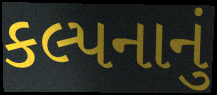
કલ્પનાનું